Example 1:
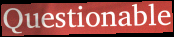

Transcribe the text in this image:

Questionable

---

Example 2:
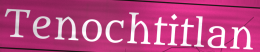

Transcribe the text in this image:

Tenochtitlan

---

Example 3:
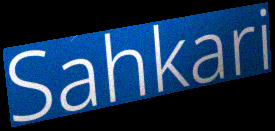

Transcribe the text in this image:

Sahkari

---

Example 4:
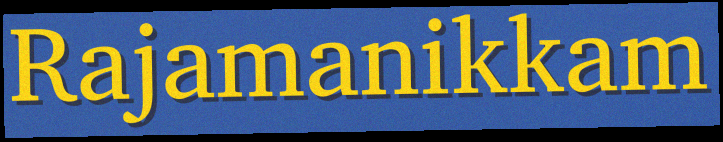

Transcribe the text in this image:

Rajamanikkam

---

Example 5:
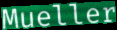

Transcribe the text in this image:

Mueller